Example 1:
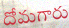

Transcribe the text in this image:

దోమగారు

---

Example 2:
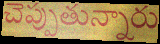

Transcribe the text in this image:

చెప్పుతున్నారు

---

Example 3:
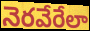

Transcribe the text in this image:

నెరవేరేలా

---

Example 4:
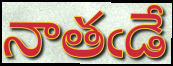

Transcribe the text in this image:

నాతఁడే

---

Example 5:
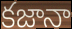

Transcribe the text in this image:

కజానా